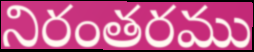
నిరంతరము